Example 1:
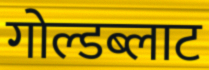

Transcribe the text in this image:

गोल्डब्लाट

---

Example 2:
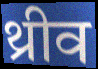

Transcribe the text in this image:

थ्रीव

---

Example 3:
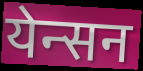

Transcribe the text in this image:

येन्सन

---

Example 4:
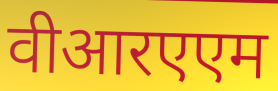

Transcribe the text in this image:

वीआरएएम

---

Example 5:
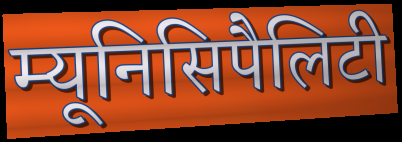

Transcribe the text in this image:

म्यूनिसिपैलिटी